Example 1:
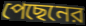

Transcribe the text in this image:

পেছেনের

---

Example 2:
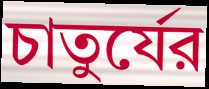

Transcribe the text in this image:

চাতুর্যের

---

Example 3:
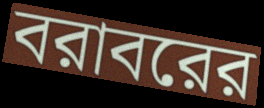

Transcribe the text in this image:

বরাবরের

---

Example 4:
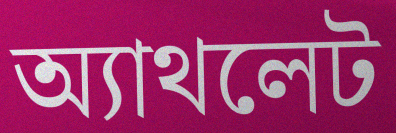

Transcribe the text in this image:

অ্যাথলেট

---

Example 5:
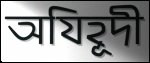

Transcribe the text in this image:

অযিহূদী